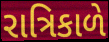
રાત્રિકાળે